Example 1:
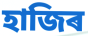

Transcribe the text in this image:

হাজিৰ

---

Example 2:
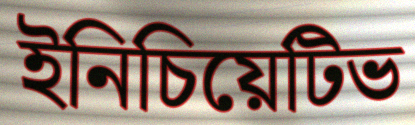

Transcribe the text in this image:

ইনিচিয়েটিভ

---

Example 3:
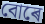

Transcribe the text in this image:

বোৰে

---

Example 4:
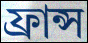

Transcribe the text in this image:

ফ্ৰান্স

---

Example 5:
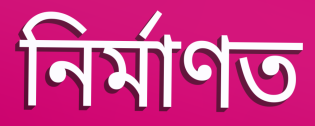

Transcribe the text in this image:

নিৰ্মাণত